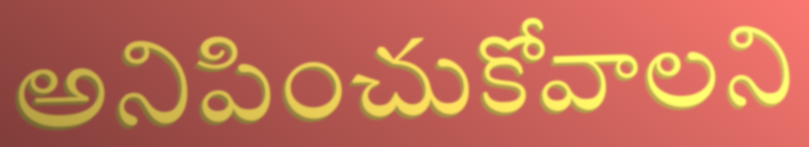
అనిపించుకోవాలని